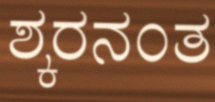
ಶ್ಕರನಂತ